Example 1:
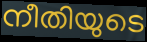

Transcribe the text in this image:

നീതിയുടെ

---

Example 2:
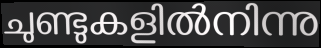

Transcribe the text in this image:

ചുണ്ടുകളിൽനിന്നു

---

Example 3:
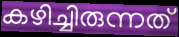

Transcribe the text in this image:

കഴിച്ചിരുന്നത്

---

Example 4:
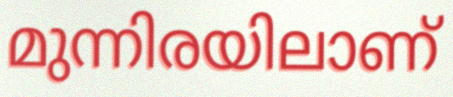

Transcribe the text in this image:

മുന്നിരയിലാണ്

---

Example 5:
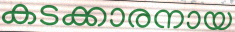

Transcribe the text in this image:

കടക്കാരനായ